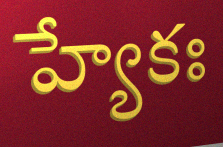
హ్యేకః